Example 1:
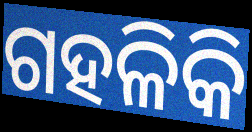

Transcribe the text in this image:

ଗହଳିକି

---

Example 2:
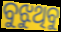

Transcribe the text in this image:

ବୁଝୁଥିବୁ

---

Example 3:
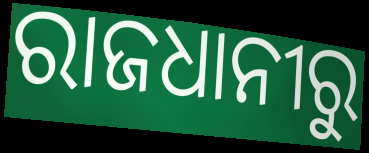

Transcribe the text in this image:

ରାଜଧାନୀରୁ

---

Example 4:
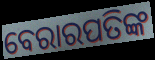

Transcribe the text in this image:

ବେରାରପତିଙ୍କ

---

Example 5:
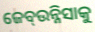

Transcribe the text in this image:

ଜେବ୍ଉନ୍ନିସାକୁ